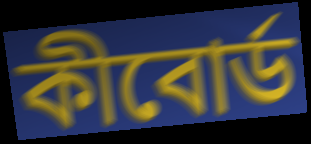
কীবোর্ড